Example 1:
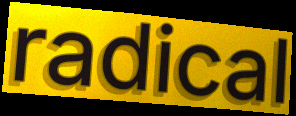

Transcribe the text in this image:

radical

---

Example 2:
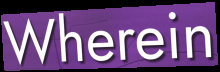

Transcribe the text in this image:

Wherein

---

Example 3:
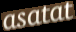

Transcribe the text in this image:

asatat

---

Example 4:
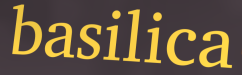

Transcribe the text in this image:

basilica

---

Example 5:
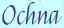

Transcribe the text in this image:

Ochna